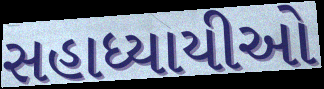
સહાધ્યાયીઓ